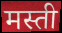
मस्ती